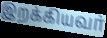
இறக்கியவர்